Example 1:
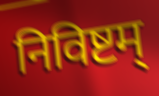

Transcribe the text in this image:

निविष्टम्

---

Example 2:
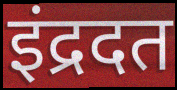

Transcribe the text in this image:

इंद्रदत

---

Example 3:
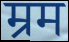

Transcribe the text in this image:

म्रम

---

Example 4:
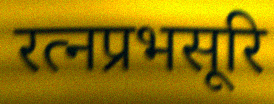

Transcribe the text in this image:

रत्नप्रभसूरि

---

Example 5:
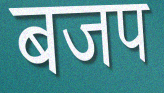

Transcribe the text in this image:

बजप